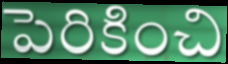
పెరికించి